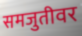
समजुतीवर